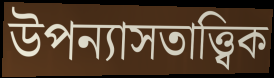
উপন্যাসতাত্ত্বিক